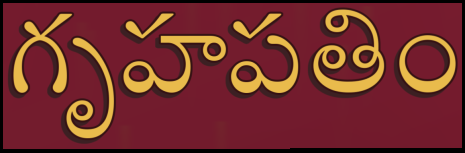
గృహపతిం